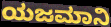
ಯಜಮಾನಿ